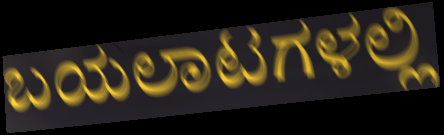
ಬಯಲಾಟಗಳಲ್ಲಿ